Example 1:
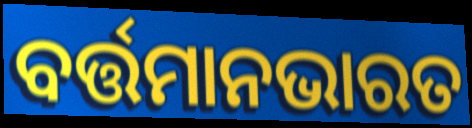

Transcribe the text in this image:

ବର୍ତ୍ତମାନଭାରତ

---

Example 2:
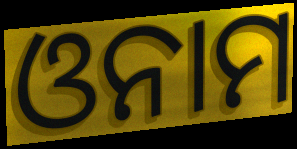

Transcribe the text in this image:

ଓନାମ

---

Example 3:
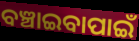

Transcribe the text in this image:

ବଞ୍ଚାଇବାପାଇଁ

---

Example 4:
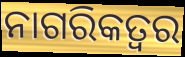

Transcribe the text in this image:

ନାଗରିକତ୍ଵର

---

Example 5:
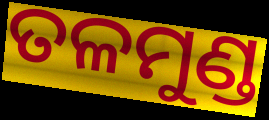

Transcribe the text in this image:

ତଳମୁଣ୍ଡ